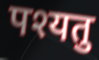
पश्यतु